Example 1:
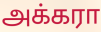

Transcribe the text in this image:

அக்கரா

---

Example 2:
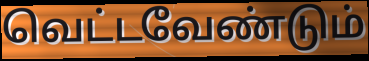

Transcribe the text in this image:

வெட்டவேண்டும்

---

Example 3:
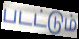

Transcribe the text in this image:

படட்டும்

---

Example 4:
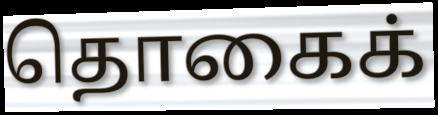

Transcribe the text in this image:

தொகைக்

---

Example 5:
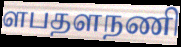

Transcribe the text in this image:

ளபதளநணி